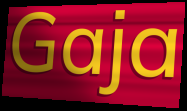
Gaja